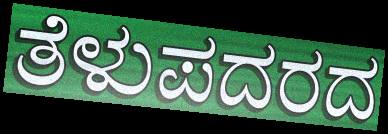
ತೆಳುಪದರದ